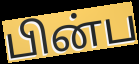
பின்ப